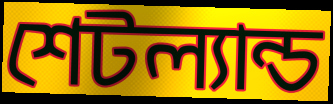
শেটল্যান্ড